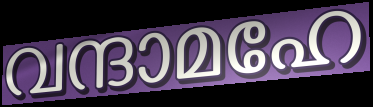
വന്ദാമഹേ